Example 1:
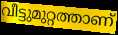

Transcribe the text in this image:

വീട്ടുമുറ്റത്താണ്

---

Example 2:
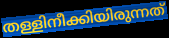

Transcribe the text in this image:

തള്ളിനീക്കിയിരുന്നത്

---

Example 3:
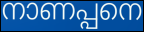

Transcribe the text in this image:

നാണപ്പനെ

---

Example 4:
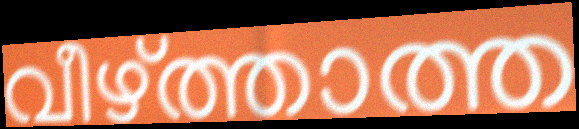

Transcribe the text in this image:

വീഴ്ത്താത്ത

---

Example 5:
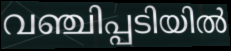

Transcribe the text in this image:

വഞ്ചിപ്പടിയിൽ